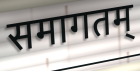
समागतम्